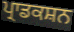
ਪ੍ਰਾਡਕਸ਼ਨ